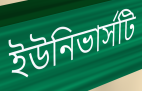
ইউনিভার্সটি